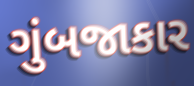
ગુંબજાકાર